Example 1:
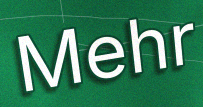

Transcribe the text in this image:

Mehr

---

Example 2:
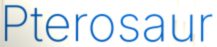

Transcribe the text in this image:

Pterosaur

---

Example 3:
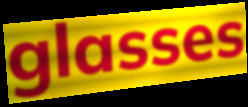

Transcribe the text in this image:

glasses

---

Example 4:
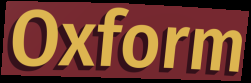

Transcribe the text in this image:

Oxform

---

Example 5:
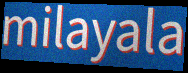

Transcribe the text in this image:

milayala